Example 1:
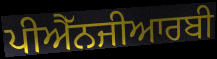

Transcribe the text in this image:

ਪੀਐੱਨਜੀਆਰਬੀ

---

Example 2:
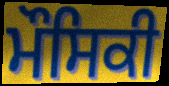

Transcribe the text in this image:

ਮੌਸਿਕੀ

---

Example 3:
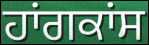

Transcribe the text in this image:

ਹਾਂਗਕਾਂਸ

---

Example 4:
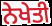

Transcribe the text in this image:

ਨੇਖੇਤੀ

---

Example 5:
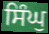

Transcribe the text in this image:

ਸਿੰਘੁ